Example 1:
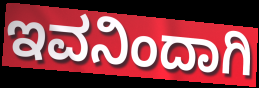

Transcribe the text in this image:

ಇವನಿಂದಾಗಿ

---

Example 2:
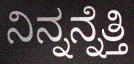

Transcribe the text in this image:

ನಿನ್ನನ್ನೆತ್ತಿ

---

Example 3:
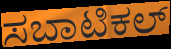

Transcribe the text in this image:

ಸಬಾಟಿಕಲ್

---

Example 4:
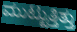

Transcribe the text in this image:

ಮುಟ್ಟುತ್ತಿತ್ತು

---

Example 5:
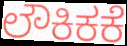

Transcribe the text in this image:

ಲೌಕಿಕಕೆ